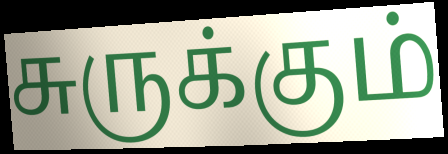
சுருக்கும்